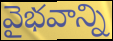
వైభవాన్ని